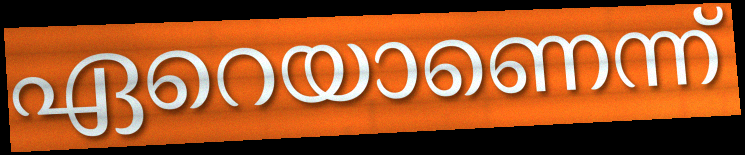
ഏറെയാണെന്ന്